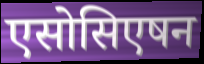
एसोसिएषन